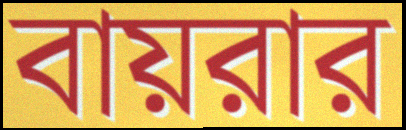
বায়রার